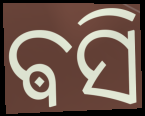
ଵସି